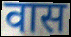
वास